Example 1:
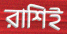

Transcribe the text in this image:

রাশিই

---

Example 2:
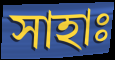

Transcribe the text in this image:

সাহাঃ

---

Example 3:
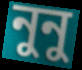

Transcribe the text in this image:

নুনু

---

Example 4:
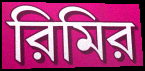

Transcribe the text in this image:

রিমির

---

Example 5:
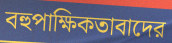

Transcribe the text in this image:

বহুপাক্ষিকতাবাদের